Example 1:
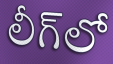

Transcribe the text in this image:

లీగ్‌లో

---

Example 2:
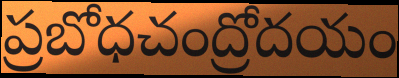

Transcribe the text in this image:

ప్రబోధచంద్రోదయం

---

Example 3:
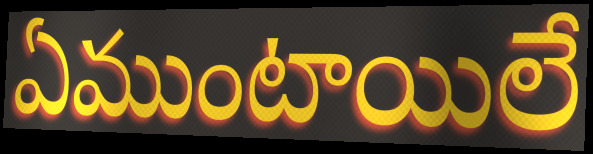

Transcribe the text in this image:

ఏముంటాయిలే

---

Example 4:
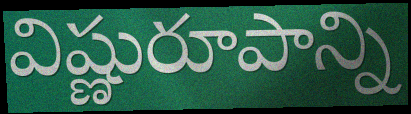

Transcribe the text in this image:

విష్ణురూపాన్ని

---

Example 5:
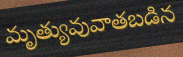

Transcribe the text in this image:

మృత్యువువాతబడిన